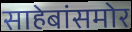
साहेबांसमोर